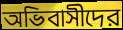
অভিবাসীদের